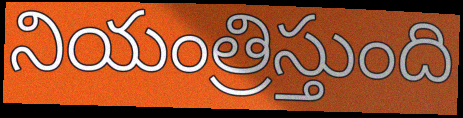
నియంత్రిస్తుంది